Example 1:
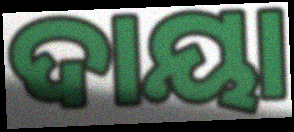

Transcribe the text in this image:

ଦାୟା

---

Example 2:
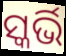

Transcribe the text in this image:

ସ୍କର୍ଭି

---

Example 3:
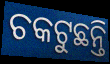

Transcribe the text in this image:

ଚକଟୁଛନ୍ତି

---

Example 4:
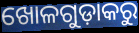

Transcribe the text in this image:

ଖୋଳଗୁଡ଼ାକରୁ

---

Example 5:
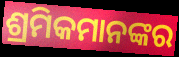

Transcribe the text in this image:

ଶ୍ରମିକମାନଙ୍କର